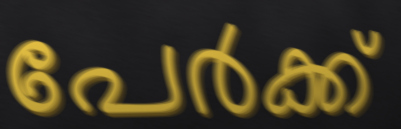
പേർക്ക്